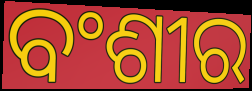
ବଂଶୀର